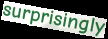
surprisingly